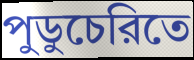
পুডুচেরিতে